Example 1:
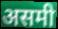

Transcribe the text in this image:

असमी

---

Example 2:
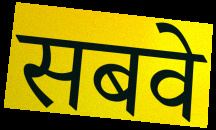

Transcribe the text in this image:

सबवे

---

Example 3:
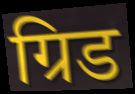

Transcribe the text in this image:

ग्रिड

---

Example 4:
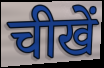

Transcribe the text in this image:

चीखें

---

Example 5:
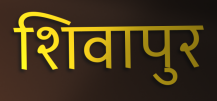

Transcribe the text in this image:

शिवापुर